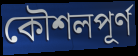
কৌশলপূর্ণ